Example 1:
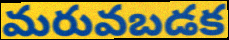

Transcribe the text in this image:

మరువబడక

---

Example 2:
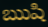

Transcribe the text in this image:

ఋషి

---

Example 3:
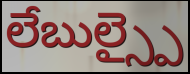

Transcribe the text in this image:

లేబుల్స్పై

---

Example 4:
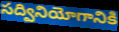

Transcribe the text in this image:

సద్వినియోగానికి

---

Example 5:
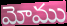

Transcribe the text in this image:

మోము